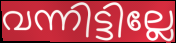
വന്നിട്ടില്ലേ